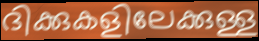
ദിക്കുകളിലേക്കുള്ള